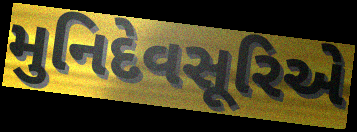
મુનિદેવસૂરિએ